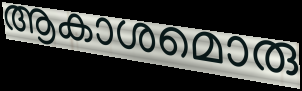
ആകാശമൊരു